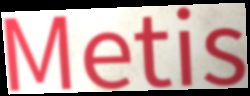
Metis